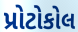
પ્રોટોકોલ